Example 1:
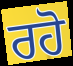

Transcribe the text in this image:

ਰਹੋ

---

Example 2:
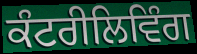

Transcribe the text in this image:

ਕੰਟਰੀਲਿਵਿੰਗ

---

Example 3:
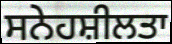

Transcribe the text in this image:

ਸਨੇਹਸ਼ੀਲਤਾ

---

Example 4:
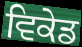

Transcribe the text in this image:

ਵਿਕੇਡ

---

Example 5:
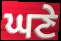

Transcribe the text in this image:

ਘਣੇ